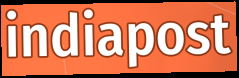
indiapost